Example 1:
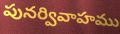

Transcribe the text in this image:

పునర్వివాహము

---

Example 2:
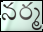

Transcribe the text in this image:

నర్మ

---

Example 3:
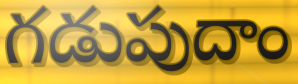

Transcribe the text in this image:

గడుపుదాం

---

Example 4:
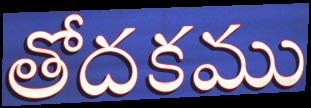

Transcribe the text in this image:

తోదకము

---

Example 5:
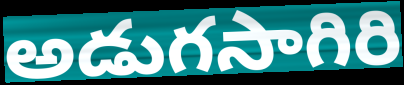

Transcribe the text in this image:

అడుగసాగిరి